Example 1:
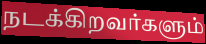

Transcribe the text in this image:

நடக்கிறவர்களும்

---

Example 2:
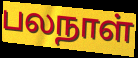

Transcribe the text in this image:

பலநாள்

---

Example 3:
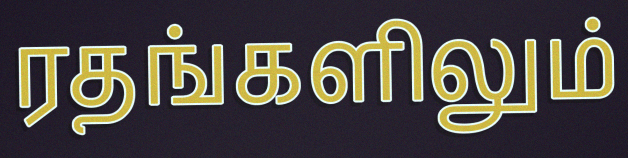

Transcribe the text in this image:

ரதங்களிலும்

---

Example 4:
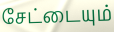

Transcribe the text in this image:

சேட்டையும்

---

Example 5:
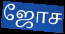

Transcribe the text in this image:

ஜோச